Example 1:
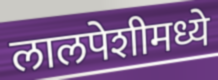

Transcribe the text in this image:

लालपेशीमध्ये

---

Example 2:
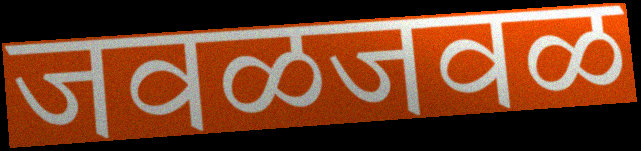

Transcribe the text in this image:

जवळजवळ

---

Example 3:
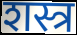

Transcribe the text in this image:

शस्त्र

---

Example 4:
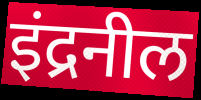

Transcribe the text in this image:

इंद्रनील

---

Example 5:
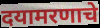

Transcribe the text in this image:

दयामरणाचे